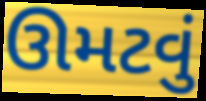
ઊમટવું